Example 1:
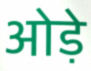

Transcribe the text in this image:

ओड़े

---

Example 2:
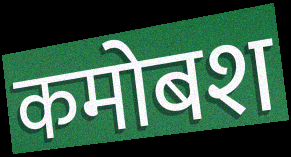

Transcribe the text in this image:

कमोबश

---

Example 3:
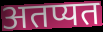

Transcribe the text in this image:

अतप्यत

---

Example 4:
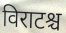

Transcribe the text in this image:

विराटश्च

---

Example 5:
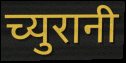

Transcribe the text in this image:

च्युरानी